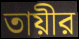
তায়ীর